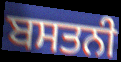
ਬਸਤਨੀ